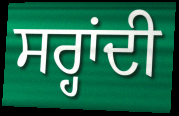
ਸਰ੍ਹਾਂਦੀ